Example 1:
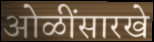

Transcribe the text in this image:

ओळींसारखे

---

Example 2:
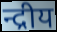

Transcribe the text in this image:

न्द्रीय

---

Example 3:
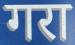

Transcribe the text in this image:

गरा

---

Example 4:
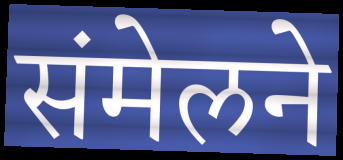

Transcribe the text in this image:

संमेलने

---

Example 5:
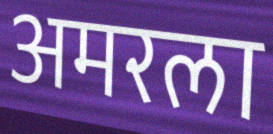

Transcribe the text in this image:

अमरला